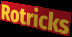
Rotricks